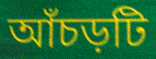
আঁচড়টি